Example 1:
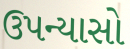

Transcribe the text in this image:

ઉપન્યાસો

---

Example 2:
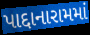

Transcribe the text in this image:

પાદ્દાનારામમાં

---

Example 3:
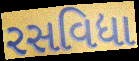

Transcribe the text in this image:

રસવિદ્યા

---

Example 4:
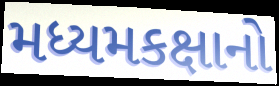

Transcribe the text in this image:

મધ્યમકક્ષાનો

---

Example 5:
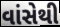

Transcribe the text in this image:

વાંસેથી